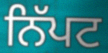
ਨਿੱਪਟ